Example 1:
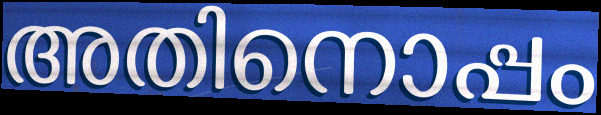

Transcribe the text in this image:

അതിനൊപ്പം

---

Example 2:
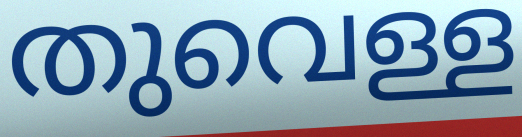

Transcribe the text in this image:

തുവെള്ള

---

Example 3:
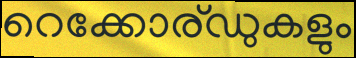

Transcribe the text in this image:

റെക്കോര്ഡുകളും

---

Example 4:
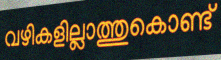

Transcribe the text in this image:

വഴികളില്ലാത്തുകൊണ്ട്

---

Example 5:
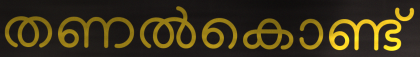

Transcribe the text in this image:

തണൽകൊണ്ട്